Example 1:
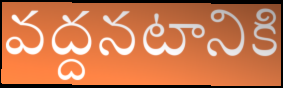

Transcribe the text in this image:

వద్దనటానికి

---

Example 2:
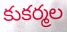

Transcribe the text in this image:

కుకర్మల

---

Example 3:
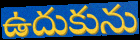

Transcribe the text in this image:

ఉదుకును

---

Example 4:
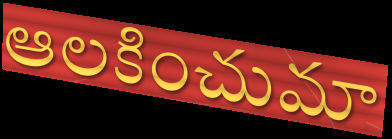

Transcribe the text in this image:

ఆలకించుమా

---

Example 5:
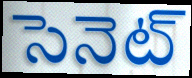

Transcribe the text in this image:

సెనెట్